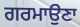
ਗਰਮਾਉਣਾ